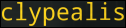
clypealis